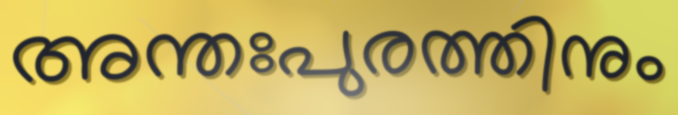
അന്തഃപുരത്തിനും